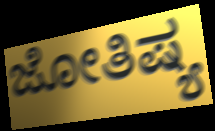
ಜೋತಿಷ್ಯ